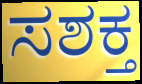
ಸಶಕ್ತ